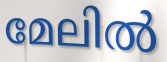
മേലിൽ